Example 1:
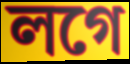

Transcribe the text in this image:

লগে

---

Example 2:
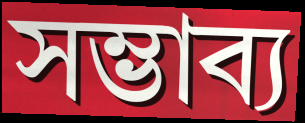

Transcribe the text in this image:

সম্ভাব্য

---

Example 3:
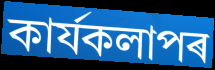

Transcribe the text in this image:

কাৰ্যকলাপৰ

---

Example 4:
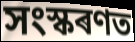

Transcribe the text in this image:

সংস্কৰণত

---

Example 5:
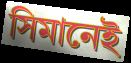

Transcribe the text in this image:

সিমানেই